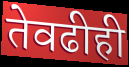
तेवढीही